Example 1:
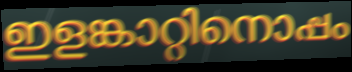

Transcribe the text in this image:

ഇളങ്കാറ്റിനൊപ്പം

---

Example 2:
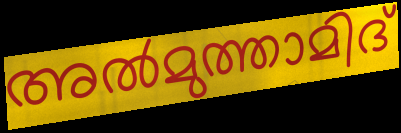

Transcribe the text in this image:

അൽമുത്താമിദ്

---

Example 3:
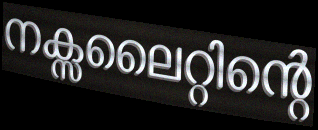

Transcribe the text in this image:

നക്സലൈറ്റിന്റെ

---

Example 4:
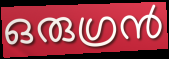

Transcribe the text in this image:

ഒരുഗ്രൻ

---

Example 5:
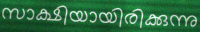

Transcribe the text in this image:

സാക്ഷിയായിരിക്കുന്നു